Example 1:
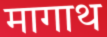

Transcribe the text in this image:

मागाथ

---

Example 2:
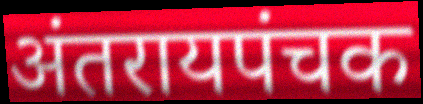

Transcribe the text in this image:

अंतरायपंचक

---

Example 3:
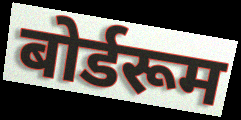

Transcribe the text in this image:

बोर्डरूम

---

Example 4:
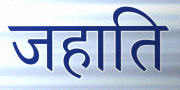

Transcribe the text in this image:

जहाति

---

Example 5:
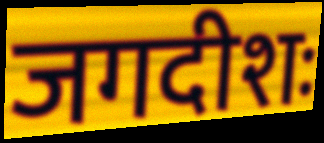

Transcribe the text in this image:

जगदीशः